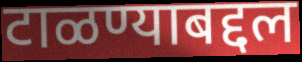
टाळण्याबद्दल